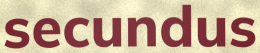
secundus